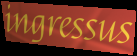
ingressus